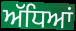
ਅੱਧਿਆਂ